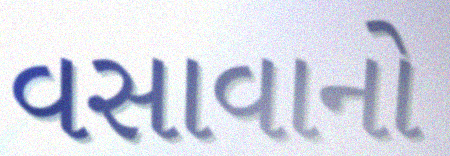
વસાવાનો